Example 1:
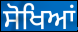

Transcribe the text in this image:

ਸੋਖਿਆਂ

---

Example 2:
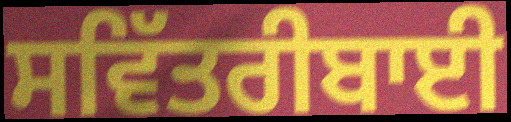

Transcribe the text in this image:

ਸਵਿੱਤਰੀਬਾਈ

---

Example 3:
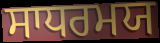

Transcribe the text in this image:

ਸਾਧਰਮਯ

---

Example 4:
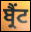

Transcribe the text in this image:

ਬ੍ਰੈਂਟ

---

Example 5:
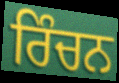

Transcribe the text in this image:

ਰਿੰਚਨ